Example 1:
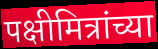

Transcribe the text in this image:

पक्षीमित्रांच्या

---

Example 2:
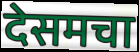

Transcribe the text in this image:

देसमचा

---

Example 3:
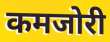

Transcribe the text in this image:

कमजोरी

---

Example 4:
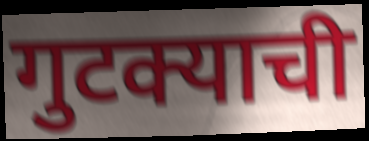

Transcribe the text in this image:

गुटक्याची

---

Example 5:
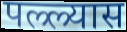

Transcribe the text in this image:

पल्ल्यास